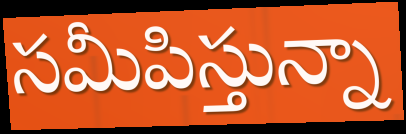
సమీపిస్తున్నా